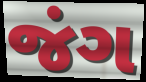
જંગ